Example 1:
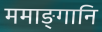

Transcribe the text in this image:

ममाङ्गानि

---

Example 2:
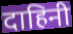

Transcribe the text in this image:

दाहिनी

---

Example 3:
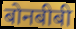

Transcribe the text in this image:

बोनबीबी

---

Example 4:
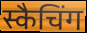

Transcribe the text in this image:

स्कैचिंग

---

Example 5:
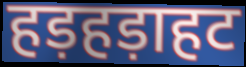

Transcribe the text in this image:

हड़हड़ाहट